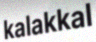
kalakkal